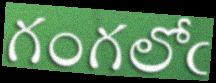
గంగలోఁ